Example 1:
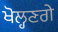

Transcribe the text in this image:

ਖੋਲ੍ਹਣਗੇ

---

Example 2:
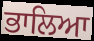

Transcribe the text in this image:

ਭਾਲਿਆ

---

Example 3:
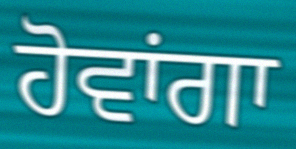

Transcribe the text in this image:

ਹੋਵਾਂਗਾ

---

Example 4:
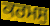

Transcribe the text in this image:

ਕਰਮਸੁ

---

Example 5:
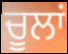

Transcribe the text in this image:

ਚੂਲਾਂ